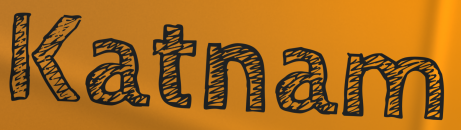
Katnam